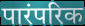
पारंपरिक